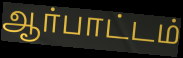
ஆர்பாட்டம்